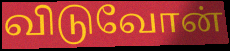
விடுவோன்